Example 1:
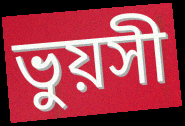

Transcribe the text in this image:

ভুয়সী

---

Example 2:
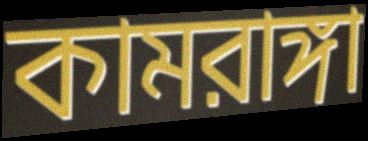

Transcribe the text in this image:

কামরাঙ্গা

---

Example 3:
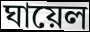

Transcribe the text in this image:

ঘায়েল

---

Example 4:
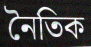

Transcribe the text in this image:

নৈতিক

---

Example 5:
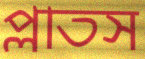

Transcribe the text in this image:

প্লাতস